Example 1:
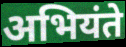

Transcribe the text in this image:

अभियंते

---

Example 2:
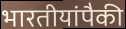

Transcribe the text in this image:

भारतीयांपैकी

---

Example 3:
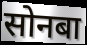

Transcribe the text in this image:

सोनबा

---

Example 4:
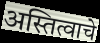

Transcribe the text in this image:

अस्तित्वाचे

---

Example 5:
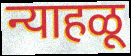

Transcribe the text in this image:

न्याहळू